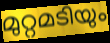
മുറ്റമടിയും